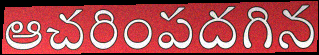
ఆచరింపదగిన